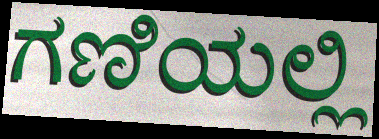
ಗಣಿಯಲ್ಲಿ